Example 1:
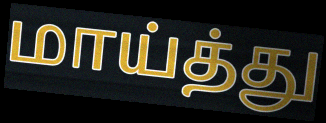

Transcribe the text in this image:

மாய்த்து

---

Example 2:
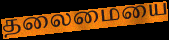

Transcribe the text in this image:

தலைமையை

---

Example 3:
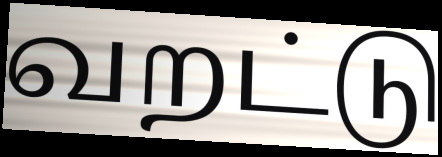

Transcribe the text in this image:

வறட்டு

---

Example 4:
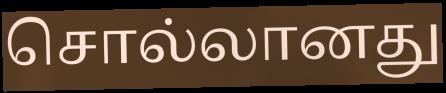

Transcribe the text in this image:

சொல்லானது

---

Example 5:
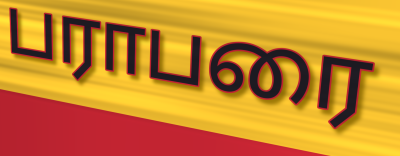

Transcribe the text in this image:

பராபரை